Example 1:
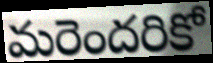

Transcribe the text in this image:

మరెందరికో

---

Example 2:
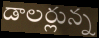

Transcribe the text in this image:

డాలర్లున్న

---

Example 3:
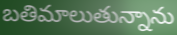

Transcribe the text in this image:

బతిమాలుతున్నాను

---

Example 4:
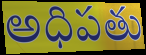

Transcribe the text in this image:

అధిపతు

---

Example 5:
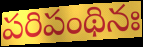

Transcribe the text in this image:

పరిపంథినః